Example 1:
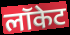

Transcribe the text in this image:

लॉकेट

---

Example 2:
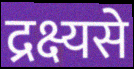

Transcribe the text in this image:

द्रक्ष्यसे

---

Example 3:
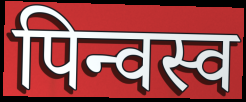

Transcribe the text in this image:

पिन्वस्व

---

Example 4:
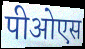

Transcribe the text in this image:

पीओएस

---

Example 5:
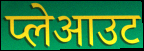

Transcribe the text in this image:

प्लेआउट